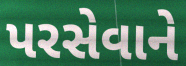
પરસેવાને